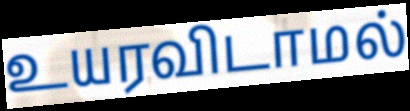
உயரவிடாமல்